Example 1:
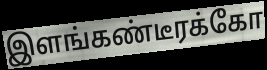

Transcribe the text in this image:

இளங்கண்டீரக்கோ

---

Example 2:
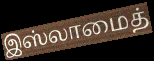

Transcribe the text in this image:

இஸ்லாமைத்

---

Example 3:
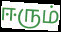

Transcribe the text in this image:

ஈரும்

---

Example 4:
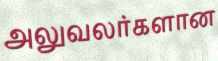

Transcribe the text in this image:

அலுவலர்களான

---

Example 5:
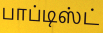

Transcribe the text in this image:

பாப்டிஸ்ட்